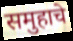
समुहाचे